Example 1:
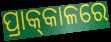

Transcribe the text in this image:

ପ୍ରାକ୍‌କାଳରେ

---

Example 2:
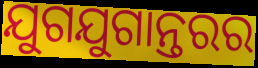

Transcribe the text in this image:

ଯୁଗଯୁଗାନ୍ତରର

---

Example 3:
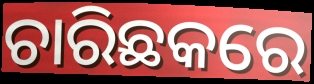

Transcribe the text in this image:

ଚାରିଛକରେ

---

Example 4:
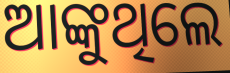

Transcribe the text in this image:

ଆଙ୍କୁଥିଲେ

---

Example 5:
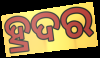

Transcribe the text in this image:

ହ୍ରଦର